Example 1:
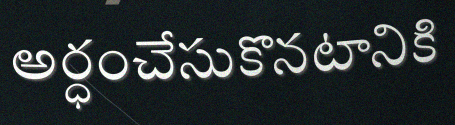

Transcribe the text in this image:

అర్ధంచేసుకొనటానికి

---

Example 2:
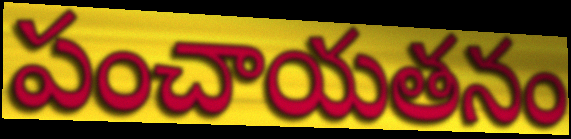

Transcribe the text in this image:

పంచాయతనం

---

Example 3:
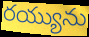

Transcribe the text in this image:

రయ్యును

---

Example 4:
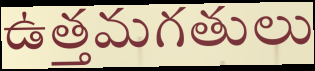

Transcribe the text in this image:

ఉత్తమగతులు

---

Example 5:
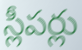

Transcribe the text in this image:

స్లీపర్లు